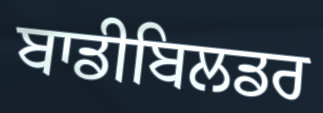
ਬਾਡੀਬਿਲਡਰ